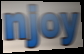
njoy